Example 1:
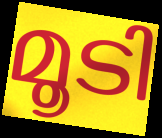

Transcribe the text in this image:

മൂടി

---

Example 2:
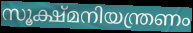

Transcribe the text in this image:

സൂക്ഷ്മനിയന്ത്രണം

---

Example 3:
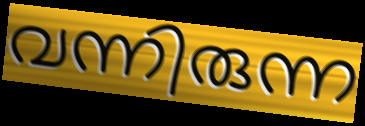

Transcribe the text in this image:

വന്നിരുന്ന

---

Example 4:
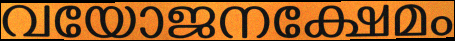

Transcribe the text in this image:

വയോജനക്ഷേമം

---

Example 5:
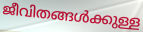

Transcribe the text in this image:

ജീവിതങ്ങൾക്കുള്ള